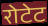
रोटेट